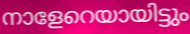
നാളേറെയായിട്ടും